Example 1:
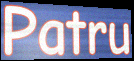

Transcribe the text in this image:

Patru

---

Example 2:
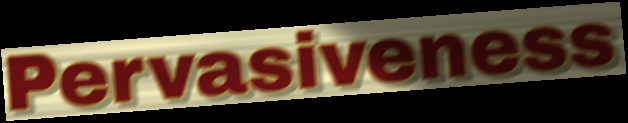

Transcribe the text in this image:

Pervasiveness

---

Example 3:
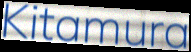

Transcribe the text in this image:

Kitamura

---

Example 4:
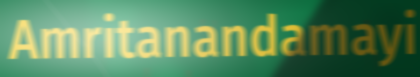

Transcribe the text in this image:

Amritanandamayi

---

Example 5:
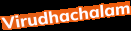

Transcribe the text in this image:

Virudhachalam